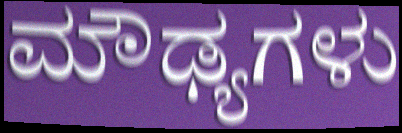
ಮೌಢ್ಯಗಳು